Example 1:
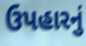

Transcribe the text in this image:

ઉપહારનું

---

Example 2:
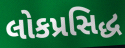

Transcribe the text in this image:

લોકપ્રસિદ્ધ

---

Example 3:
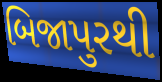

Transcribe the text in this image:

બિજાપુરથી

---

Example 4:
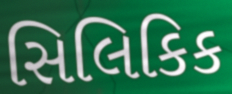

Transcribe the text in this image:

સિલિકિક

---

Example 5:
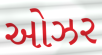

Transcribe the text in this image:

ઓઝર